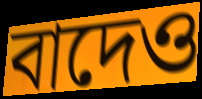
বাদেও